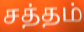
சத்தம்